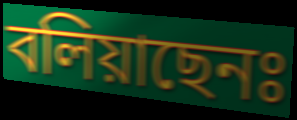
বলিয়াছেনঃ